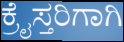
ಕ್ರೈಸ್ತರಿಗಾಗಿ